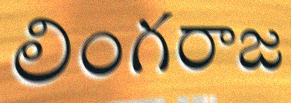
లింగరాజ